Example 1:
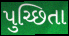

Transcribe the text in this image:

પુચ્છિતા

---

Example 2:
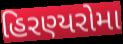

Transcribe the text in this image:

હિરણ્યરોમા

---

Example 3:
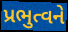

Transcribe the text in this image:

પ્રભુત્વને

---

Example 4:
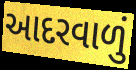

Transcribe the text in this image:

આદરવાળું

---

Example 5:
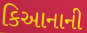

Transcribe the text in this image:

કિઆનાની